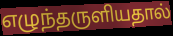
எழுந்தருளியதால்